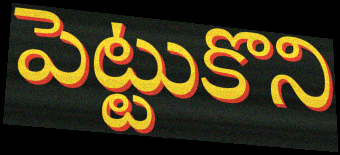
పెట్టుకొని